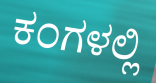
ಕಂಗಳಲ್ಲಿ